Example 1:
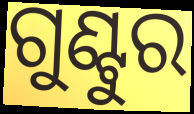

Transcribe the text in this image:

ଗୁଣ୍ଟୁର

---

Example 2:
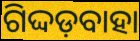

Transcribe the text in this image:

ଗିଦ୍ଦଡ଼ବାହା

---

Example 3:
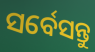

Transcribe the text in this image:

ସର୍ବେସନ୍ତୁ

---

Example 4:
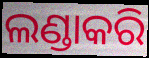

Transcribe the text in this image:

ଲଣ୍ଡାକରି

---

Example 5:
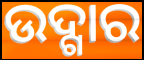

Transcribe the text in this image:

ଉଦ୍ଗାର